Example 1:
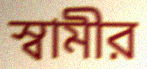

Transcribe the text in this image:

স্বামীর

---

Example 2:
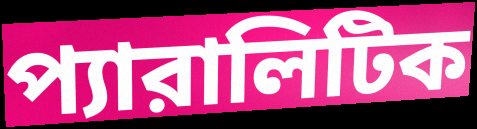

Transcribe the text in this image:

প্যারালিটিক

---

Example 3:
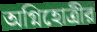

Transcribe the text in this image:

অগ্নিহোত্রীর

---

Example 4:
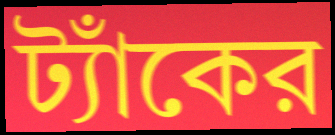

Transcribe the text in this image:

ট্যাঁকের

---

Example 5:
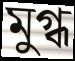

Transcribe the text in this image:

মুগ্ধ